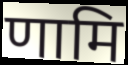
णामि